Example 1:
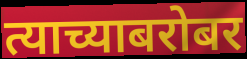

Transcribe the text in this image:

त्याच्याबरोबर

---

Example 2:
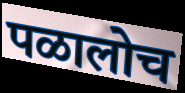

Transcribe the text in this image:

पळालोच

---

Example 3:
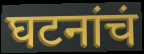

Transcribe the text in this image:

घटनांचं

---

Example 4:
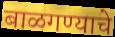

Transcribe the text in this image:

बाळगण्याचे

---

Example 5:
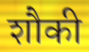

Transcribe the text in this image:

शौकी